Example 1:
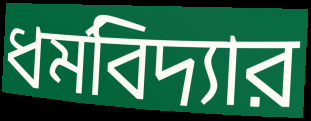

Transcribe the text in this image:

ধর্মবিদ্যার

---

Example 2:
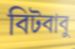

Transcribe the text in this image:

বিটবাবু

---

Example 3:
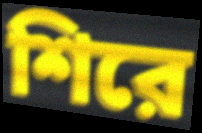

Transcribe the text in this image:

শিরে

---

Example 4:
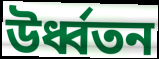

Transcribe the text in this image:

উর্ধ্বতন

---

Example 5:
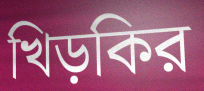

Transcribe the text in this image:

খিড়কির